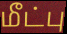
மீட்பு